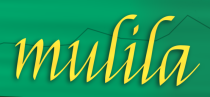
mulila